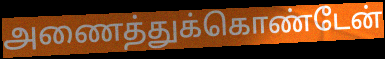
அணைத்துக்கொண்டேன்